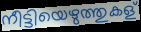
നീട്ടിയെഴുത്തുകള്